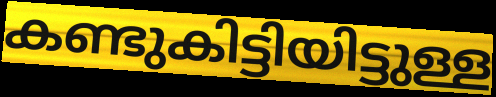
കണ്ടുകിട്ടിയിട്ടുള്ള